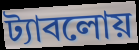
ট্যাবলোয়